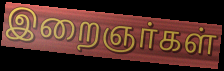
இறைஞர்கள்